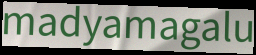
madyamagalu